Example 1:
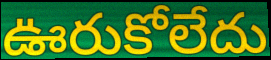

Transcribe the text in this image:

ఊరుకోలేదు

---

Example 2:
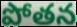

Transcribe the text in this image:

పోతన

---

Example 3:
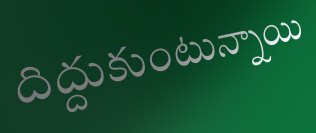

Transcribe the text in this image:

దిద్దుకుంటున్నాయి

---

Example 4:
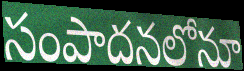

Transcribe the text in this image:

సంపాదనలోనూ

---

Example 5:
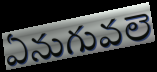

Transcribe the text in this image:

ఏనుగువలె